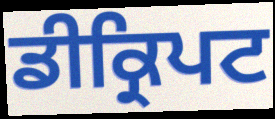
ਡੀਕ੍ਰਿਪਟ